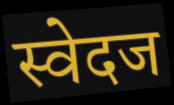
स्वेदज